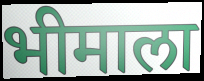
भीमाला